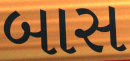
બાસ